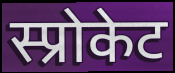
स्प्रोकेट